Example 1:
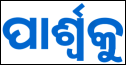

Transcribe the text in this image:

ପାର୍ଶ୍ଵକୁ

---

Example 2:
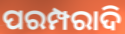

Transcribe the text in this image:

ପରମ୍ପରାଦି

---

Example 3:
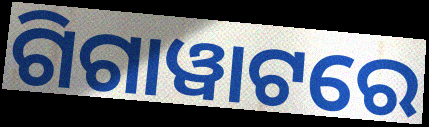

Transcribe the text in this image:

ଗିଗାୱାଟରେ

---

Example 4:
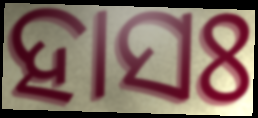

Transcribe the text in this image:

ହାସଃ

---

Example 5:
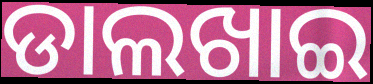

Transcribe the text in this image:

ଡାଲଖାଇ